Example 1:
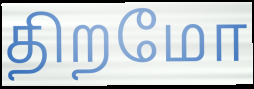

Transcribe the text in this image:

திறமோ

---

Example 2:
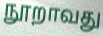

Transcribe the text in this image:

நூறாவது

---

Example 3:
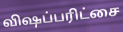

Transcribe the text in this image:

விஷப்பரிட்சை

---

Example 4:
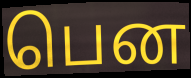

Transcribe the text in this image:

பென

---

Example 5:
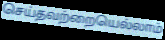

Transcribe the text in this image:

செய்தவற்றையெல்லாம்